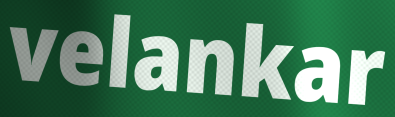
velankar